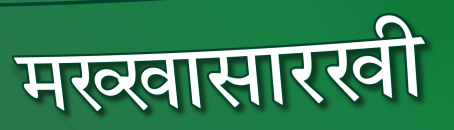
मख्खासारखी